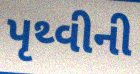
પૃથ્વીની